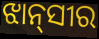
ଝାନ୍‌ସୀର